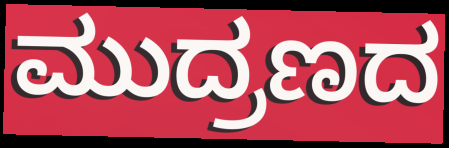
ಮುದ್ರಣದ